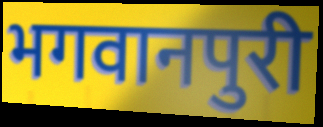
भगवानपुरी